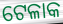
ଟେଳାକ